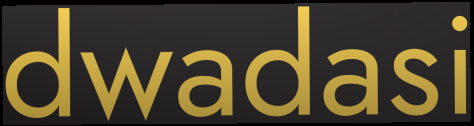
dwadasi